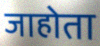
जाहोता